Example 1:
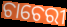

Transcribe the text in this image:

ଚାଚେରୀ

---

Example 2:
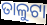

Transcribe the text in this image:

ତାଳୁଟା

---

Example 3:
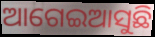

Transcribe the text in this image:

ଆଗେଇଆସୁଛି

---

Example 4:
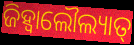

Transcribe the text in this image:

ଜିହ୍ଵାଲୌଲ୍ୟାତ୍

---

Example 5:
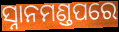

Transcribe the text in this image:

ସ୍ନାନମଣ୍ଡପରେ